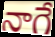
నాగే